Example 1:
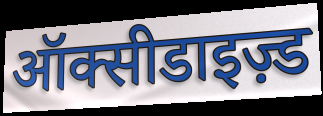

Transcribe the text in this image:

ऑक्सीडाइज़्ड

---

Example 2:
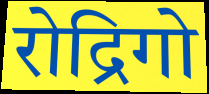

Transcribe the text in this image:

रोद्रिगो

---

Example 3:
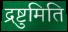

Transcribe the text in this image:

द्रष्टुमिति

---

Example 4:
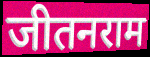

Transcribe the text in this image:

जीतनराम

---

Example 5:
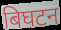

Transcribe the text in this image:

बिघटन